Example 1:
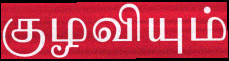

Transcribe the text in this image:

குழவியும்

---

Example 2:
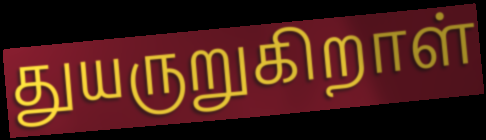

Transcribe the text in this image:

துயருறுகிறாள்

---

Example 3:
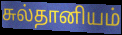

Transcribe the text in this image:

சுல்தானியம்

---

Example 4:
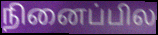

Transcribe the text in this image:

நினைப்பில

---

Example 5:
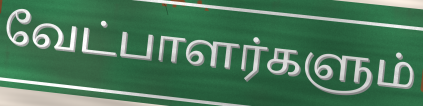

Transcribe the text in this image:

வேட்பாளர்களும்